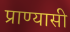
प्राण्यासी